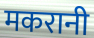
मकरानी